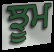
ਝੂਮ